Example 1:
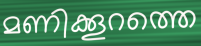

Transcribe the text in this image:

മണിക്കൂറത്തെ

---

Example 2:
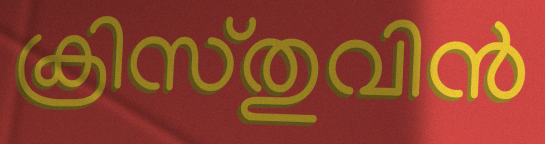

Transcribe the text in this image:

ക്രിസ്തുവിൻ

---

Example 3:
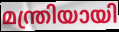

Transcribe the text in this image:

മന്ത്രിയായി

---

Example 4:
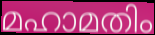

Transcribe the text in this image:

മഹാമതിം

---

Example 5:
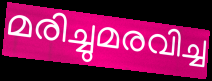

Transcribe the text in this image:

മരിച്ചുമരവിച്ച